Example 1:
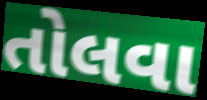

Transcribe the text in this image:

તોલવા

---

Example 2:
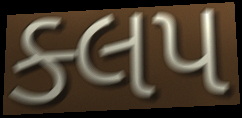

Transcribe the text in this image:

ક્લપ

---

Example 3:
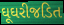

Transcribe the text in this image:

ઘૂઘરીજડિત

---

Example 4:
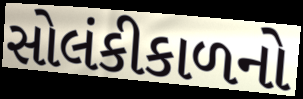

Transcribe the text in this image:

સોલંકીકાળનો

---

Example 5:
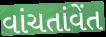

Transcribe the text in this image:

વાંચતાંવેંત